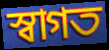
স্বাগত